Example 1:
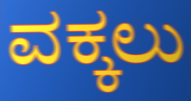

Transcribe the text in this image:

ವಕ್ಕಲು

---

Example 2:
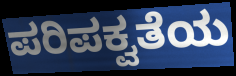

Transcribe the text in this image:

ಪರಿಪಕ್ವತೆಯ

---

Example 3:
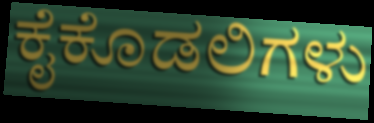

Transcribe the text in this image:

ಕೈಕೊಡಲಿಗಳು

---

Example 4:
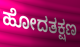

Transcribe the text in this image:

ಹೋದತಕ್ಷಣ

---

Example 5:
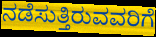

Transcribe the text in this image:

ನಡೆಸುತ್ತಿರುವವರಿಗೆ